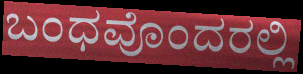
ಬಂಧವೊಂದರಲ್ಲಿ